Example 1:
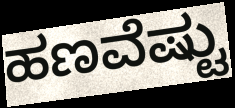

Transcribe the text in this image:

ಹಣವೆಷ್ಟು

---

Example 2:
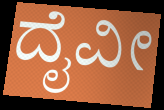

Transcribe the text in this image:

ದೈವೀ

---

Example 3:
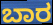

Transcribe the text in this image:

ಬಾರ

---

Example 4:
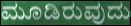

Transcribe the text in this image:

ಮೂಡಿರುವುದು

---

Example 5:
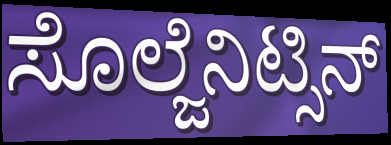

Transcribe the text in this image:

ಸೊಲ್ಜೆನಿಟ್ಸಿನ್